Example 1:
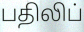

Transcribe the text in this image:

பதிலிப்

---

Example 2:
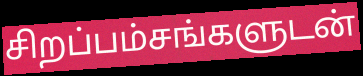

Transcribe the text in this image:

சிறப்பம்சங்களுடன்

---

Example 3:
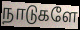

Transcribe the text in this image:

நாடுகளே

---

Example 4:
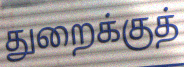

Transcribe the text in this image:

துறைக்குத்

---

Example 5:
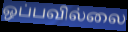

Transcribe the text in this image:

ஒப்பவில்லை